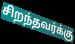
சிறந்தவர்க்கு